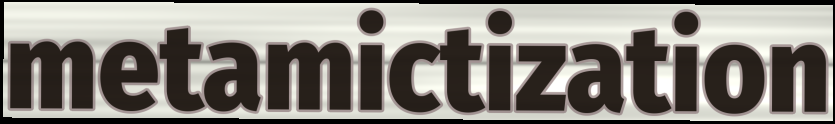
metamictization